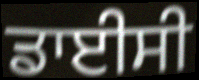
ਡਾਈਸੀ